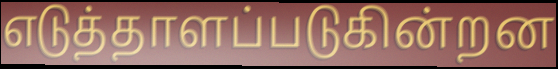
எடுத்தாளப்படுகின்றன